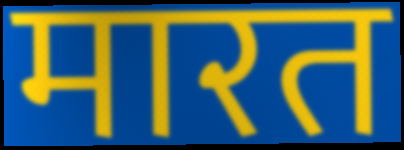
मारत